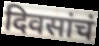
दिवसांचं